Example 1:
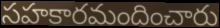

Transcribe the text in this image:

సహకారమందించారు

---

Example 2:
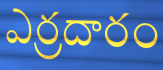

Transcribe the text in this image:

ఎర్రదారం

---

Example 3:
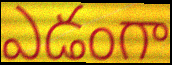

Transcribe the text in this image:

ఎడంగా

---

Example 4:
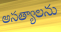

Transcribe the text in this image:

అసత్యాలను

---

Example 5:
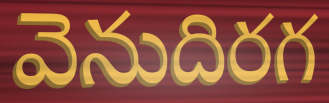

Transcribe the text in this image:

వెనుదిరగ